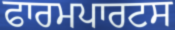
ਫਾਰਮਪਾਰਟਸ